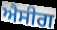
ਐਸੀਗ